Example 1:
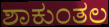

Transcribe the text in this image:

ಶಾಕುಂತಲ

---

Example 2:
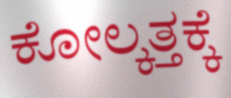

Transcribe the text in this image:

ಕೋಲ್ಕತ್ತಕ್ಕೆ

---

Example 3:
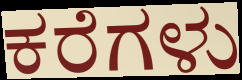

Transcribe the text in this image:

ಕರೆಗಳು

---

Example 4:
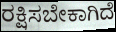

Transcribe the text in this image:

ರಕ್ಷಿಸಬೇಕಾಗಿದೆ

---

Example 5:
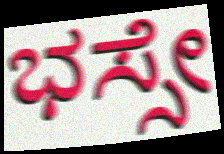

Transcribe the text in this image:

ಭಸ್ಸೇ